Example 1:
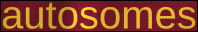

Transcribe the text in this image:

autosomes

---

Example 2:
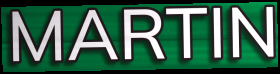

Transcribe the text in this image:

MARTIN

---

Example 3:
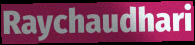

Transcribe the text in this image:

Raychaudhari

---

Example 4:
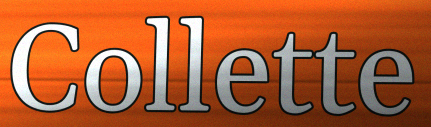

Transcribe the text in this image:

Collette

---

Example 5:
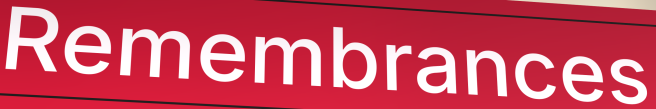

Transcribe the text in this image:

Remembrances